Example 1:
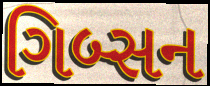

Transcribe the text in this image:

ગિબ્સન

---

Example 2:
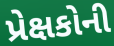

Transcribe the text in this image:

પ્રેક્ષકોની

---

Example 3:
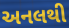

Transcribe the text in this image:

અનલથી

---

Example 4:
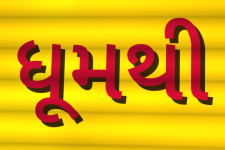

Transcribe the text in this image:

ધૂમથી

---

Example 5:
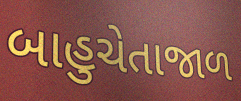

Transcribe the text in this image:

બાહુચેતાજાળ